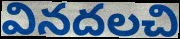
వినదలచి